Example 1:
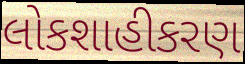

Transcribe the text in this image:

લોકશાહીકરણ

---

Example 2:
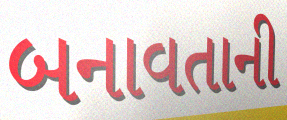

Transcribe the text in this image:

બનાવતાની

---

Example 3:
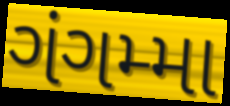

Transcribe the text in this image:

ગંગમ્મા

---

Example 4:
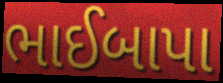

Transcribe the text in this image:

ભાઈબાપા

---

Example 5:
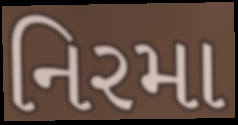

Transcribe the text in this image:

નિરમા